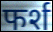
फर्श